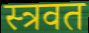
स्त्रवत